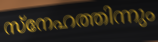
സ്നേഹത്തിന്നും